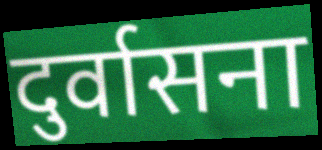
दुर्वासना